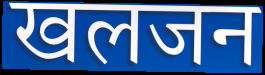
खलजन